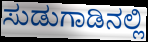
ಸುಡುಗಾಡಿನಲ್ಲಿ